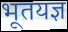
भूतयज्ञ